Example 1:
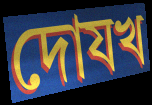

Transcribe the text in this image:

দোযখ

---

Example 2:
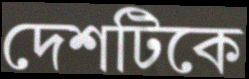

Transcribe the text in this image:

দেশটিকে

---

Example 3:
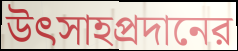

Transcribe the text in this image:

উৎসাহপ্রদানের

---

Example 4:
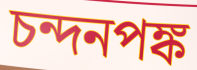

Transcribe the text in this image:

চন্দনপঙ্ক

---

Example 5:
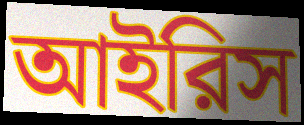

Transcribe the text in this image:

আইরিস